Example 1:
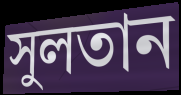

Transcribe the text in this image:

সুলতান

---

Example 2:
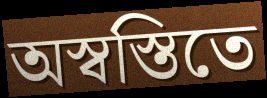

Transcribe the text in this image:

অস্বস্তিতে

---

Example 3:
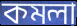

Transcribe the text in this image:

কমলা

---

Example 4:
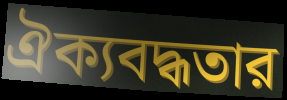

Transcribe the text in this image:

ঐক্যবদ্ধতার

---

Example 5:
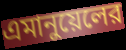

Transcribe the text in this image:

এমানুয়েলের